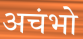
अचंभो